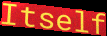
Itself